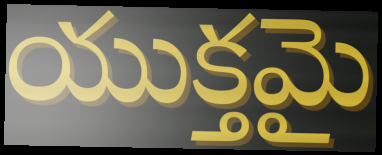
యుక్తమై